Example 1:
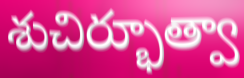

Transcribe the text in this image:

శుచిర్భూత్వా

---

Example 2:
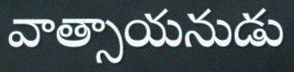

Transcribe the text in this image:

వాత్సాయనుడు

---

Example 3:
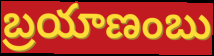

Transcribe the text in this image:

బ్రయాణంబు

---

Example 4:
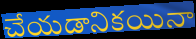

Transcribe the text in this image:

చేయడానికయినా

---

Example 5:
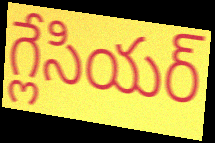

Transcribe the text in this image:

గ్లేసియర్